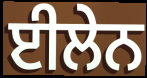
ਈਲੇਨ